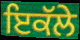
ਇਕੱਲੇ